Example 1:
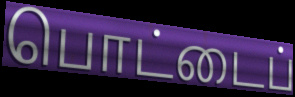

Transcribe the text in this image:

பொட்டைப்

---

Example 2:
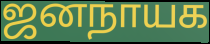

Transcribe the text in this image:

ஜனநாயக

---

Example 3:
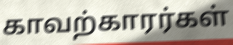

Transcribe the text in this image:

காவற்காரர்கள்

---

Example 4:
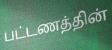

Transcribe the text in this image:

பட்டணத்தின்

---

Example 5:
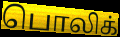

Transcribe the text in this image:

பொலிக்